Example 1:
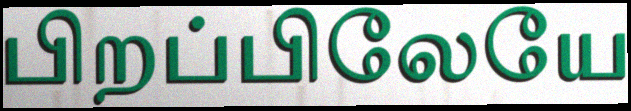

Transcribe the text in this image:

பிறப்பிலேயே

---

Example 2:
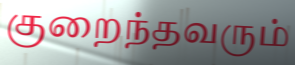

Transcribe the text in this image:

குறைந்தவரும்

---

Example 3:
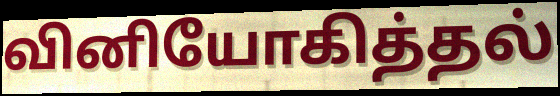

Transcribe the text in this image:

வினியோகித்தல்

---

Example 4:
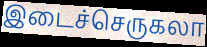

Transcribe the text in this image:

இடைச்செருகலா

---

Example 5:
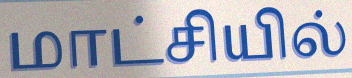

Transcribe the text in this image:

மாட்சியில்